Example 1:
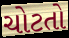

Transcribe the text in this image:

ચોટતો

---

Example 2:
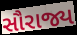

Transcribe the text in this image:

સૌરાજ્ય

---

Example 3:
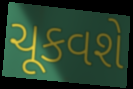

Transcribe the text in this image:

ચૂકવશે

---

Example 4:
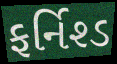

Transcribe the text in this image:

ફર્નિશ્ડ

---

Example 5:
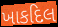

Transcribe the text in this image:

ખાકદિલ